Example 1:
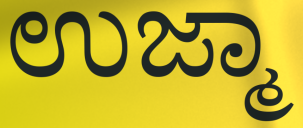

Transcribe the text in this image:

ಉಜ್ಮಾ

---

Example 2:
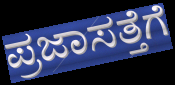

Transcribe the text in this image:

ಪ್ರಜಾಸತ್ತೆಗೆ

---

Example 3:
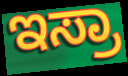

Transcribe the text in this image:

ಇಸ್ರಾ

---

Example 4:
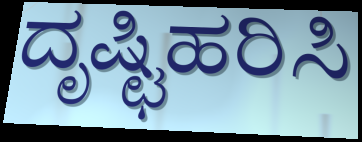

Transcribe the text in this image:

ದೃಷ್ಟಿಹರಿಸಿ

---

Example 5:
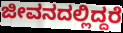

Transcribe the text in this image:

ಜೀವನದಲ್ಲಿದ್ದರೆ